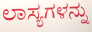
ಲಾಸ್ಯಗಳನ್ನು